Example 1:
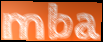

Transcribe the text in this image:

mba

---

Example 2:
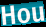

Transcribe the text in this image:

Hou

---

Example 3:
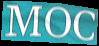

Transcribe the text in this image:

MOC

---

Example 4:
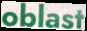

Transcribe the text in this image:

oblast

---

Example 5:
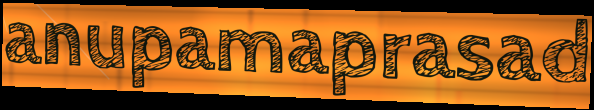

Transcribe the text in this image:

anupamaprasad